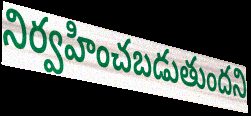
నిర్వహించబడుతుందని